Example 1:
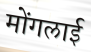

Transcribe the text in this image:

मोंगलाई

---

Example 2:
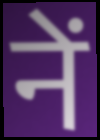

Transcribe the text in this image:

नें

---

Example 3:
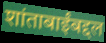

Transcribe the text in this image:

शांताबाईंबद्दल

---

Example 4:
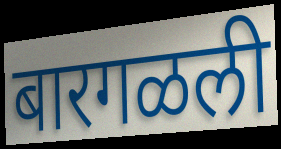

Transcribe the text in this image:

बारगळली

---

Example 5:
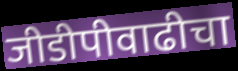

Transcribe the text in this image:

जीडीपीवाढीचा